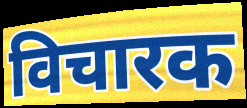
विचारक